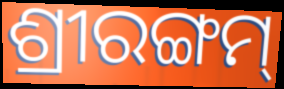
ଶ୍ରୀରଙ୍ଗମ୍